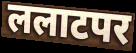
ललाटपर